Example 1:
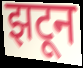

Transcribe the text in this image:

झटून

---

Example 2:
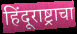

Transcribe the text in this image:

हिंदूराष्ट्राचा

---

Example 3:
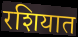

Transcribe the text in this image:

रशियात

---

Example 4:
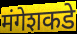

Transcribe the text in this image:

मंगेशकडे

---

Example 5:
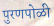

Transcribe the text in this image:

पुरणपोळी